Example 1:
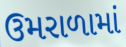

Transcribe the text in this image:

ઉમરાળામાં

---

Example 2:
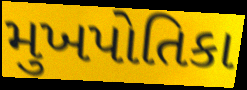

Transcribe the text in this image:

મુખપોતિકા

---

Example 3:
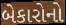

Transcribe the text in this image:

બેકારોનો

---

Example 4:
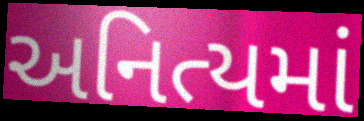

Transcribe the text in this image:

અનિત્યમાં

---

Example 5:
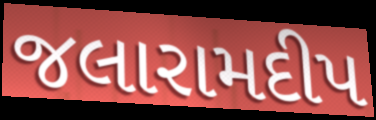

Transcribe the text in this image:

જલારામદીપ